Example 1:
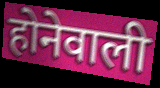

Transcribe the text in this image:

होनेवाली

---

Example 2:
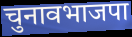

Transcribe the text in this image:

चुनावभाजपा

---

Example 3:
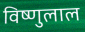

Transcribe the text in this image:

विष्णुलाल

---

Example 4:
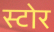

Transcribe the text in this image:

स्टोर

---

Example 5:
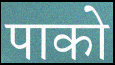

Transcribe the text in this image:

पाको